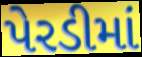
પેરડીમાં